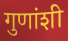
गुणांशी